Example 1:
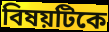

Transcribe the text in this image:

বিষয়টিকে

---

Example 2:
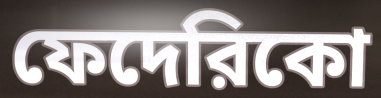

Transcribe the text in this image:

ফেদেরিকো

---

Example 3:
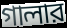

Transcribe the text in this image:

গালার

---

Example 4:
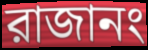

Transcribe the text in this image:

রাজানং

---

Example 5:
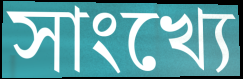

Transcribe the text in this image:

সাংখ্যে